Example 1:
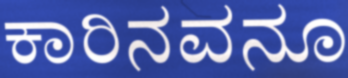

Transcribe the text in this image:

ಕಾರಿನವನೂ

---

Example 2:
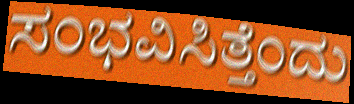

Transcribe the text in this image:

ಸಂಭವಿಸಿತ್ತೆಂದು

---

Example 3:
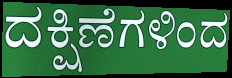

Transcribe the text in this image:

ದಕ್ಷಿಣೆಗಳಿಂದ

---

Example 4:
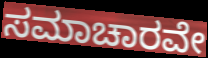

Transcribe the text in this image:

ಸಮಾಚಾರವೇ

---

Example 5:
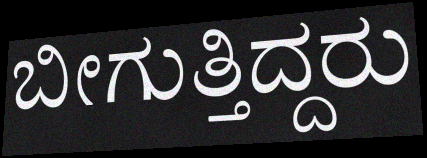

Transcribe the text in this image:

ಬೀಗುತ್ತಿದ್ದರು